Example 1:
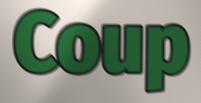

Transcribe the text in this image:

Coup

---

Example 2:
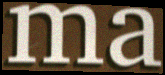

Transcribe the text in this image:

ma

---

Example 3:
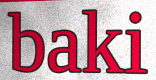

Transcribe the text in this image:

baki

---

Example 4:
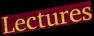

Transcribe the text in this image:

Lectures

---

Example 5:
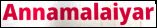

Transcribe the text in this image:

Annamalaiyar